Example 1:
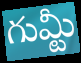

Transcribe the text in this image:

గుమ్టీ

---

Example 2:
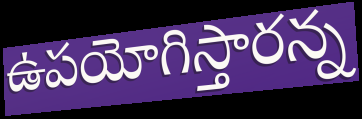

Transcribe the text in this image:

ఉపయోగిస్తారన్న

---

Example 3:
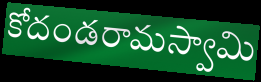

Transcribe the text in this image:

కోదండరామస్వామి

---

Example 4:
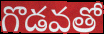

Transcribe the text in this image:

గొడవతో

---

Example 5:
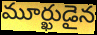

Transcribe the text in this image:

మూర్ఖుడైన